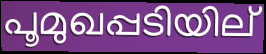
പൂമുഖപ്പടിയില്